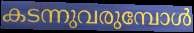
കടന്നുവരുമ്പോൾ